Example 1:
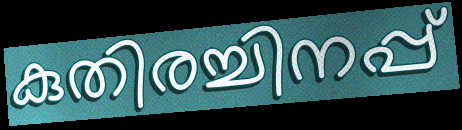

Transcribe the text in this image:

കുതിരച്ചിനപ്പ്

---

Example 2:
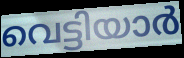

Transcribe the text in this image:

വെട്ടിയാർ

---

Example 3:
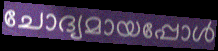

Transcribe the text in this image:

ചോദ്യമായപ്പോൾ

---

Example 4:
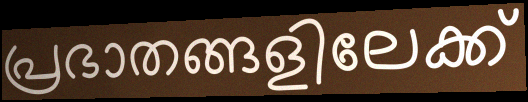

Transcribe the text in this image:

പ്രഭാതങ്ങളിലേക്ക്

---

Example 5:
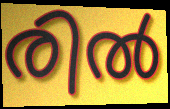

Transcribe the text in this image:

രിൽ